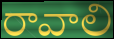
రావాలి